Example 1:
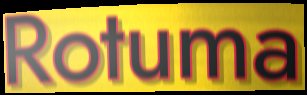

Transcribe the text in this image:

Rotuma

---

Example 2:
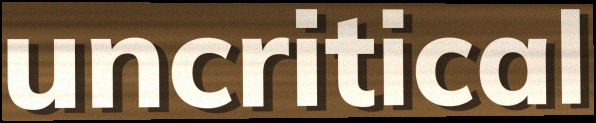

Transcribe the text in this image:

uncritical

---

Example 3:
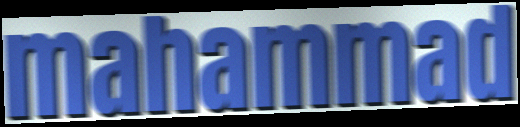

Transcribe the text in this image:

mahammad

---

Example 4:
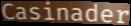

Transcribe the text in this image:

Casinader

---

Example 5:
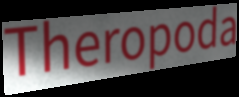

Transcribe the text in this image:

Theropoda